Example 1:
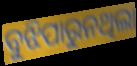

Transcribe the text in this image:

ବୁଝିପାରୁନଥିଲା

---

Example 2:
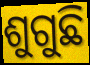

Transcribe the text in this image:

ଶୁଗୁଛି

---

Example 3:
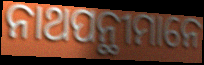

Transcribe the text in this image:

ନାଥପନ୍ଥୀମାନେ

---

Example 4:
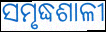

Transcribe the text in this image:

ସମୃଦ୍ଧଶାଳୀ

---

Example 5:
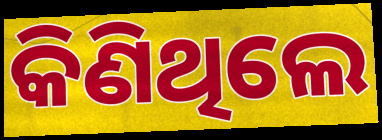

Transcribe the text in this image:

କିଣିଥିଲେ